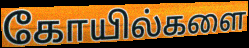
கோயில்களை